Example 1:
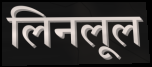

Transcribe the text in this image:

लिनलूल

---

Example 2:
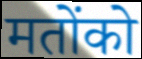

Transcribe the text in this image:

मतोंको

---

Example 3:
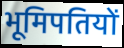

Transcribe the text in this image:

भूमिपतियों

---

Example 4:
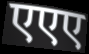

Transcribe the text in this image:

एएए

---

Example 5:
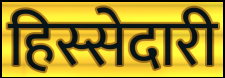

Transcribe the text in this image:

हिस्‍सेदारी